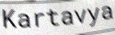
Kartavya